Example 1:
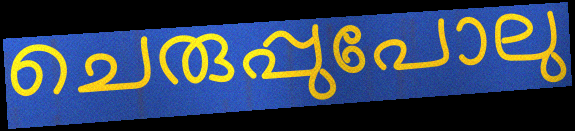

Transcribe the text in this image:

ചെരുപ്പുപോലു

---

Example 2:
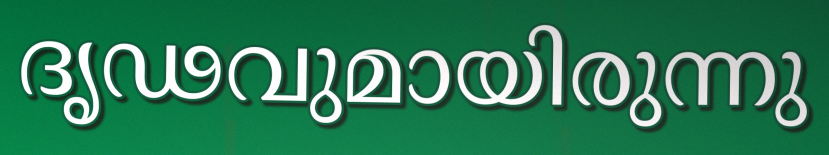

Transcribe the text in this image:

ദൃഢവുമായിരുന്നു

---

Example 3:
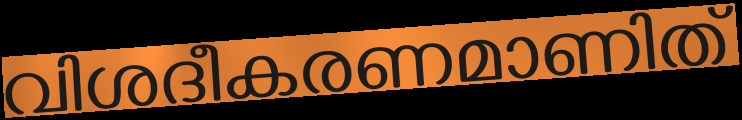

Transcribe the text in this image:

വിശദീകരണമാണിത്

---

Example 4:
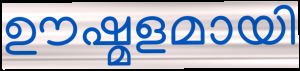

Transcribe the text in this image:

ഊഷ്മളമായി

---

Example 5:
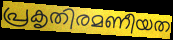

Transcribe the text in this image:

പ്രകൃതിരമണീയത